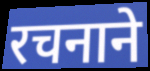
रचनाने